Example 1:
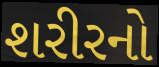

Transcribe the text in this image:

શરીરનો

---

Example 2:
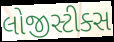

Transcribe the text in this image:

લોજીસ્ટીક્સ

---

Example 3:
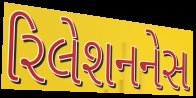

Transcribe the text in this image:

રિલેશનનેસ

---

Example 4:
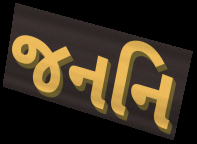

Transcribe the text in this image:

જનનિ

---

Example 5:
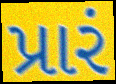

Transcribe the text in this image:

પ્રારં